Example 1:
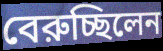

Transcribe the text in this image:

বেরুচ্ছিলেন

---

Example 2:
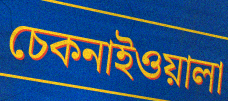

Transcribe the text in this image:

চেকনাইওয়ালা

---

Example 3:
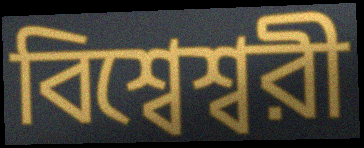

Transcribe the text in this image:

বিশ্বেশ্বরী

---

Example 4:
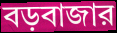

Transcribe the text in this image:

বড়বাজার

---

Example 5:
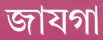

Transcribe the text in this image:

জাযগা